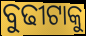
ବୁଢୀଟାକୁ